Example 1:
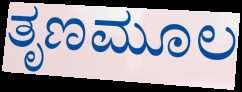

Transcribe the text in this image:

ತೃಣಮೂಲ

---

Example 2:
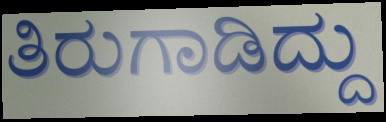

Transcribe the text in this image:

ತಿರುಗಾಡಿದ್ದು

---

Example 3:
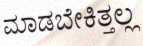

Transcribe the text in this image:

ಮಾಡಬೇಕಿತ್ತಲ್ಲ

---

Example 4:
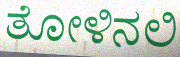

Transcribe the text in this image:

ತೋಳಿನಲಿ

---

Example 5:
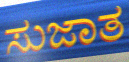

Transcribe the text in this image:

ಸುಜಾತ